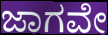
ಜಾಗವೇ